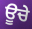
ਊਚੇ